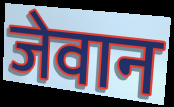
जेवान